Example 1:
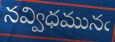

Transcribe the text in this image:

నవ్విధమునఁ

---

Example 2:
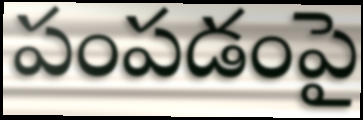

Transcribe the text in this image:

పంపడంపై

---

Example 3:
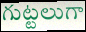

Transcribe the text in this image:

గుట్టలుగా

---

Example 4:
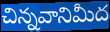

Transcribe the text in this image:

చిన్నవానిమీద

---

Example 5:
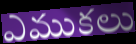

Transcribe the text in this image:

ఎముకలు